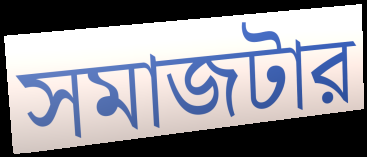
সমাজটার